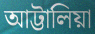
আট্টালিয়া